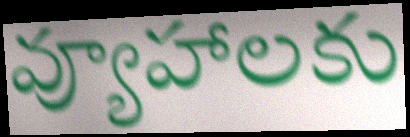
వ్యూహాలకు